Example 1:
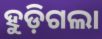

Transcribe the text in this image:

ହୁଡ଼ିଗଲା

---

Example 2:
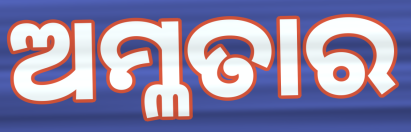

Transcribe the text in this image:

ଅମ୍ଳତାର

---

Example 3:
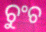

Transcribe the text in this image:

ଚୁଂଚ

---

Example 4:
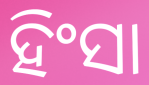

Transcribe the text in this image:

ହିଂସା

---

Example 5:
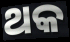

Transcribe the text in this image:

ଥକ